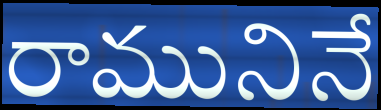
రామునినే